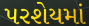
પરશેયમાં